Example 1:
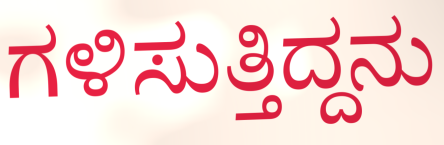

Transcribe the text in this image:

ಗಳಿಸುತ್ತಿದ್ದನು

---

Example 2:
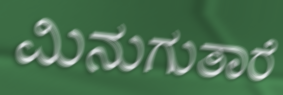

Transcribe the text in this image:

ಮಿನುಗುತಾರೆ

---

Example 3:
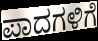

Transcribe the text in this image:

ಪಾದಗಳಿಗೆ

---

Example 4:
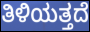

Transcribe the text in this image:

ತಿಳಿಯತ್ತದೆ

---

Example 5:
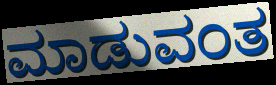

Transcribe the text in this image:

ಮಾಡುವಂತ